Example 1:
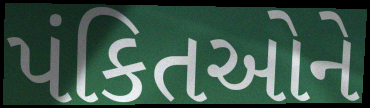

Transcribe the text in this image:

પંકિતઓને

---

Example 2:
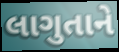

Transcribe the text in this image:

લાગુતાને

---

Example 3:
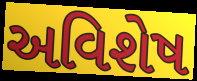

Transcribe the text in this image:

અવિશેષ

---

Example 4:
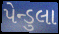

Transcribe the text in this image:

પેન્ડુલા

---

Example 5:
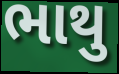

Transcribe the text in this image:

ભાથુ